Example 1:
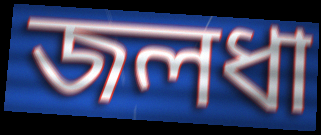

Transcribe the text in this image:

জলধা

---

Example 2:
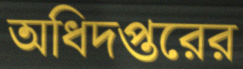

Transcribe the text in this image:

অধিদপ্তরের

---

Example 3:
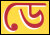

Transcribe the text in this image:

ডে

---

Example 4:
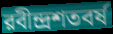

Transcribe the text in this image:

রবীন্দ্রশতবর্ষ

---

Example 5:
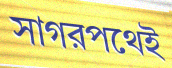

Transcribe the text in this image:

সাগরপথেই